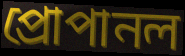
প্রোপানল